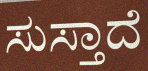
ಸುಸ್ತಾದೆ